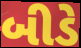
બીડે